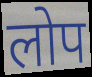
लोप